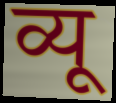
व्यू